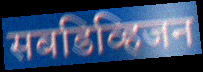
सबडिव्हिजन